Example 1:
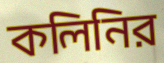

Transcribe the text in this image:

কলিনির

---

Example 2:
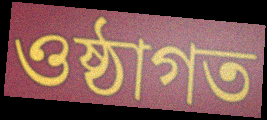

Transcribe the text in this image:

ওষ্ঠাগত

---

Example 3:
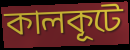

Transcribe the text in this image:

কালকূটে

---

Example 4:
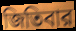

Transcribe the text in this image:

জিতিবার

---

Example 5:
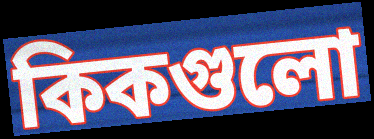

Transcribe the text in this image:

কিকগুলো